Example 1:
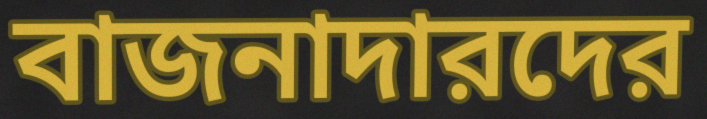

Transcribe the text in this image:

বাজনাদারদের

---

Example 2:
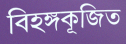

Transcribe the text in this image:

বিহঙ্গকূজিত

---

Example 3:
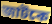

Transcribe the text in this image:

জাটকে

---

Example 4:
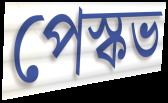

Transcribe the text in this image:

পেস্কভ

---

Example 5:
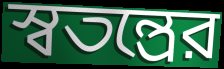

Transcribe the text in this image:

স্বতন্ত্রের